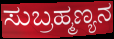
ಸುಬ್ರಹ್ಮಣ್ಯನ